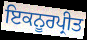
ਇਕਨੂਰਪ੍ਰੀਤ